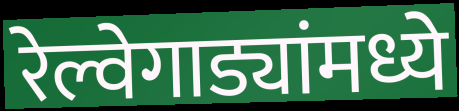
रेल्वेगाड्यांमध्ये